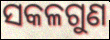
ସକଳଗୁଣ